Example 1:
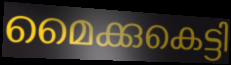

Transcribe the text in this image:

മൈക്കുകെട്ടി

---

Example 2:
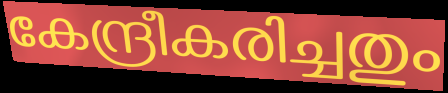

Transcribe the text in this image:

കേന്ദ്രീകരിച്ചതും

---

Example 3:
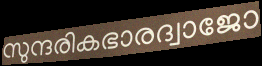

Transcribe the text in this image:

സുന്ദരികഭാരദ്വാജോ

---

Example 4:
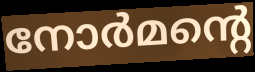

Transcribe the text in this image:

നോർമന്റെ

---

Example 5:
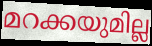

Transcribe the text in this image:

മറക്കയുമില്ല